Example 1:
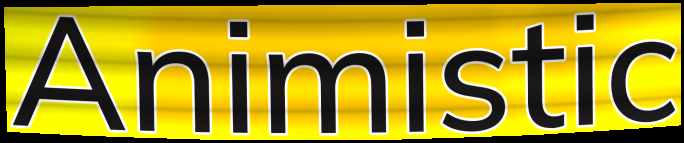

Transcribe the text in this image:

Animistic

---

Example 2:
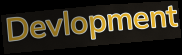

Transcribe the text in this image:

Devlopment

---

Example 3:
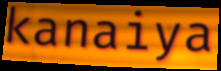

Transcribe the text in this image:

kanaiya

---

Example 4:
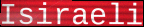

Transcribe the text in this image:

Isiraeli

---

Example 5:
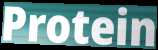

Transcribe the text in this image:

Protein